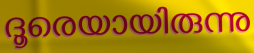
ദൂരെയായിരുന്നു